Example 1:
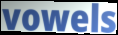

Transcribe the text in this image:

vowels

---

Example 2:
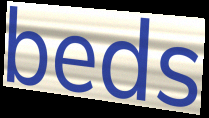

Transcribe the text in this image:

beds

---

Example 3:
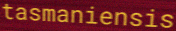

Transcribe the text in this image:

tasmaniensis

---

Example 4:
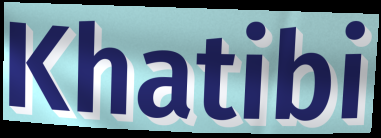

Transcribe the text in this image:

Khatibi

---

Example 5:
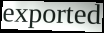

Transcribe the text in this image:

exported